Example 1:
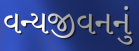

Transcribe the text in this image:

વન્યજીવનનું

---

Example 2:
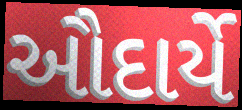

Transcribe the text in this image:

ઔદાર્યે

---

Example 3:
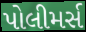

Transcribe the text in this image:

પોલીમર્સ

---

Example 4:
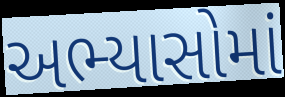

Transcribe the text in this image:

અભ્યાસોમાં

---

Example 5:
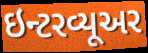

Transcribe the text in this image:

ઇન્ટરવ્યૂઅર